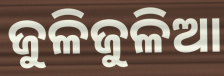
ଜୁଳିଜୁଳିଆ